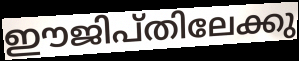
ഈജിപ്തിലേക്കു